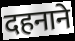
दहनाने